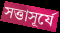
সত্তাসূর্যে